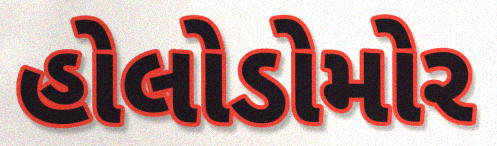
હોલોડોમોર